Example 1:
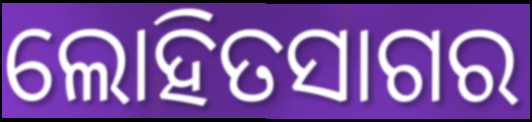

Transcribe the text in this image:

ଲୋହିତସାଗର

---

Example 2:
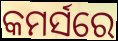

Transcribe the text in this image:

କମର୍ସରେ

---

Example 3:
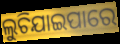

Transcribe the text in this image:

ଲୁଚିଯାଇପାରେ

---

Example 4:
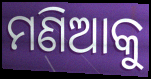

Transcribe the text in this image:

ମଣିଆକୁ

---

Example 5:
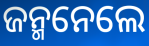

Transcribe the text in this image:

ଜନ୍ମନେଲେ